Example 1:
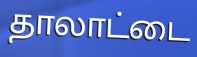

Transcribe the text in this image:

தாலாட்டை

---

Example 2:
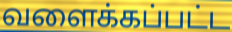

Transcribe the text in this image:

வளைக்கப்பட்ட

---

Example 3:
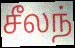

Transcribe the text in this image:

சீலந்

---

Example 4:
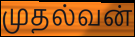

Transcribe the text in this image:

முதல்வன்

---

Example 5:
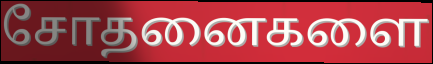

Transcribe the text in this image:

சோதனைகளை